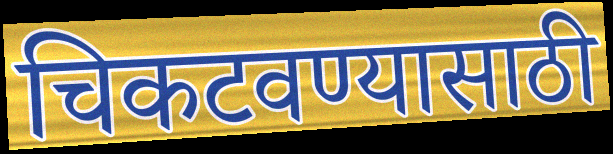
चिकटवण्यासाठी